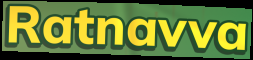
Ratnavva